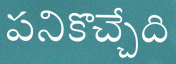
పనికొచ్చేది